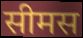
सीमस